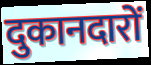
दुकानदारों